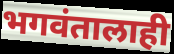
भगवंतालाही